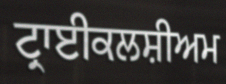
ਟ੍ਰਾਈਕਲਸ਼ੀਅਮ